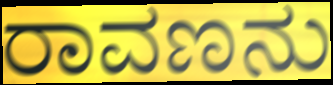
ರಾವಣನು